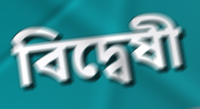
বিদ্বেষী